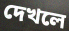
দেখলে